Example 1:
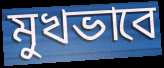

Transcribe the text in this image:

মুখভাবে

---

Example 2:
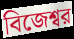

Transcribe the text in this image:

বিজেশ্বর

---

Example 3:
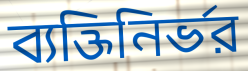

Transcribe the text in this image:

ব্যক্তিনির্ভর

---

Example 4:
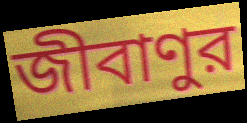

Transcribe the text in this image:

জীবাণুর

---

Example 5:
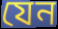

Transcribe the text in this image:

যেন